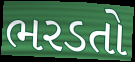
ભરડતો